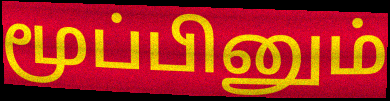
மூப்பினும்